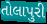
તોલાપુરી